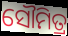
ସୌମିତ୍ର